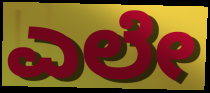
ಎಲೇ